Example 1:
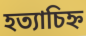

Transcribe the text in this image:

হত্যাচিহ্ন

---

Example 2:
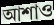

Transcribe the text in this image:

আশাও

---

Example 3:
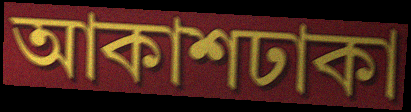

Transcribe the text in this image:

আকাশঢাকা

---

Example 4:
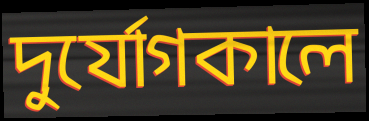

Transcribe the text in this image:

দুর্যোগকালে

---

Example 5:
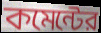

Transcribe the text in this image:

কমেন্টের